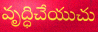
వృద్ధిచేయుచు